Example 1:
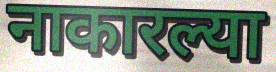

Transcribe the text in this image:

नाकारल्या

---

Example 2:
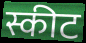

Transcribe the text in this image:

स्कीट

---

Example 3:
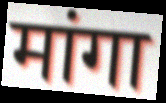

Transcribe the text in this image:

मांगा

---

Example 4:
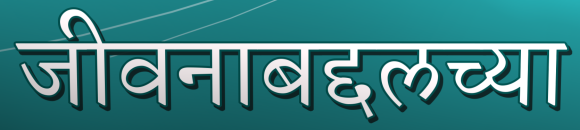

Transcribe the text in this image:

जीवनाबद्दलच्या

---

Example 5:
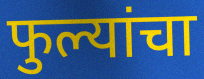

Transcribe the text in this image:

फुल्यांचा